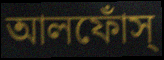
আলফোঁস্